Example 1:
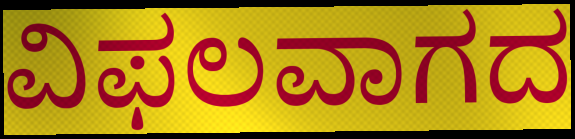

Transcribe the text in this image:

ವಿಫಲವಾಗದ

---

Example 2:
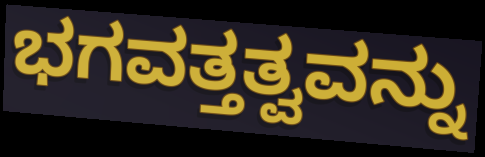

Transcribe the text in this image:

ಭಗವತ್ತತ್ವವನ್ನು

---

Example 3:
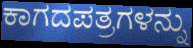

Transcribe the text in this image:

ಕಾಗದಪತ್ರಗಳನ್ನು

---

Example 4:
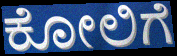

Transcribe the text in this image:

ಕೋಲಿಗೆ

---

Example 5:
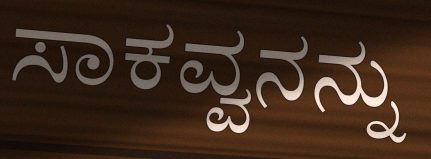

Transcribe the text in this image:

ಸಾಕವ್ವನನ್ನು